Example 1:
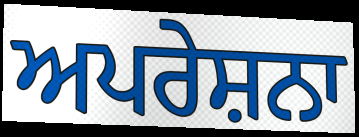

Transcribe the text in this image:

ਅਪਰੇਸ਼ਨਾ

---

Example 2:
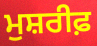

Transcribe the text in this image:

ਮੁਸ਼ਰੀਫ਼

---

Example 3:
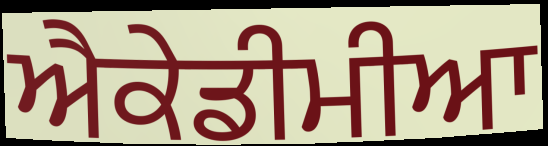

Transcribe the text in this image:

ਐਕੇਡੀਮੀਆ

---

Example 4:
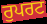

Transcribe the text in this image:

ਰੁਪਰਟ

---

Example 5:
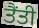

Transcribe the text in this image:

ਤੈਂਤੀ